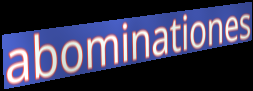
abominationes